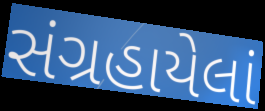
સંગ્રહાયેલાં